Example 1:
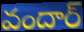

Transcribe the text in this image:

వందార్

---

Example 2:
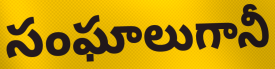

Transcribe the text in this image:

సంఘాలుగానీ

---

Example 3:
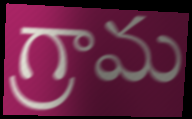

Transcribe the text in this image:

గ్రామ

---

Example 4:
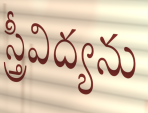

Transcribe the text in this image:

స్త్రీవిద్యను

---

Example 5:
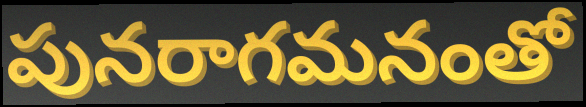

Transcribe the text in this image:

పునరాగమనంతో